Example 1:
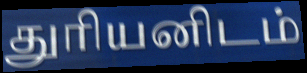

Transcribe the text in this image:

துரியனிடம்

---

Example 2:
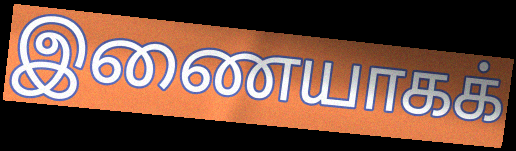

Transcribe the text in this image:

இணையாகக்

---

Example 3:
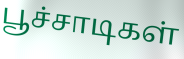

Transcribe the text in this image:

பூச்சாடிகள்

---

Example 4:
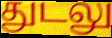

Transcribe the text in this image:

துடலு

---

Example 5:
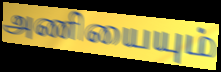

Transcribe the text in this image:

அணியையும்